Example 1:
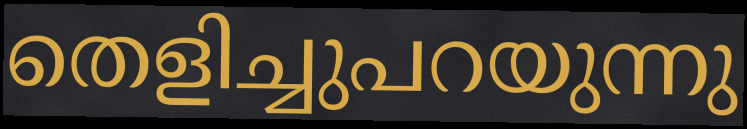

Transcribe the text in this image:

തെളിച്ചുപറയുന്നു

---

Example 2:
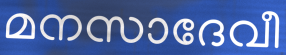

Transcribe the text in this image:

മനസാദേവീ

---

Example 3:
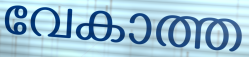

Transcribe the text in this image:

വേകാത്ത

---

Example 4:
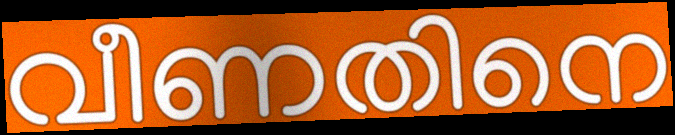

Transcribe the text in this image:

വീണതിനെ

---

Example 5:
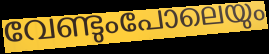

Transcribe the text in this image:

വേണ്ടുംപോലെയും